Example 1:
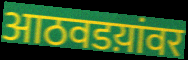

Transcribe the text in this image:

आठवडय़ांवर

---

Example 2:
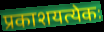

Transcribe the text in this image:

प्रकाशयत्येकः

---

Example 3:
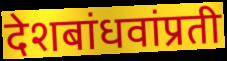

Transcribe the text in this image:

देशबांधवांप्रती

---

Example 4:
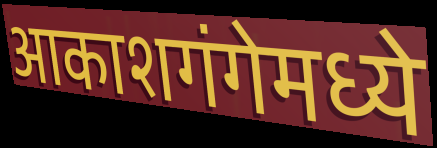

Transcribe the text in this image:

आकाशगंगेमध्ये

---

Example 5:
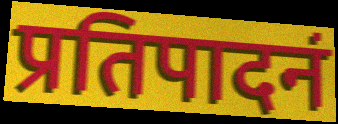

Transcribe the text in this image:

प्रतिपादनं